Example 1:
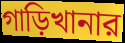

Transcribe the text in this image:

গাড়িখানার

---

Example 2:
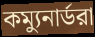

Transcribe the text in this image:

কম্যুনার্ডরা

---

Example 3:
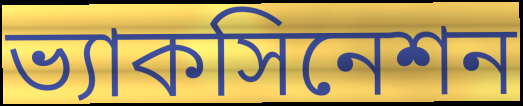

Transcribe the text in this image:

ভ্যাকসিনেশন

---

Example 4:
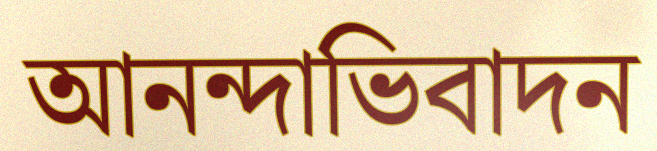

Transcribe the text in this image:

আনন্দাভিবাদন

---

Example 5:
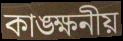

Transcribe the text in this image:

কাঙ্ক্ষনীয়